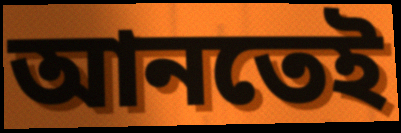
আনতেই